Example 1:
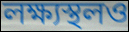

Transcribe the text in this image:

লক্ষ্যস্থলও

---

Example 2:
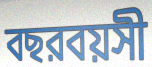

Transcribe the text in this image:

বছরবয়সী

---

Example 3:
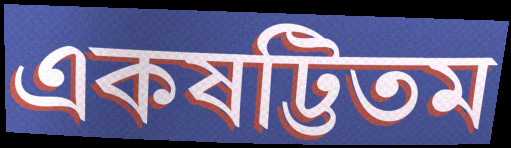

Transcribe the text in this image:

একষট্টিতম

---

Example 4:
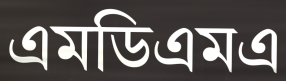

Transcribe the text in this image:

এমডিএমএ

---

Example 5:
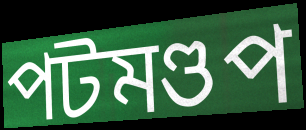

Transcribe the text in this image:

পটমণ্ডপ